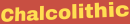
Chalcolithic